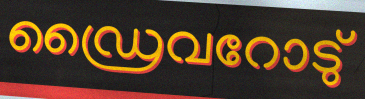
ഡ്രൈവറോടു്